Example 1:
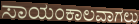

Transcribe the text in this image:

ಸಾಯಂಕಾಲವಾಗಲು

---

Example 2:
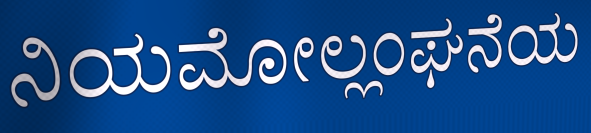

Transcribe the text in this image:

ನಿಯಮೋಲ್ಲಂಘನೆಯ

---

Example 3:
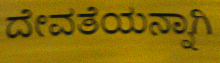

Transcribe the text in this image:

ದೇವತೆಯನ್ನಾಗಿ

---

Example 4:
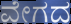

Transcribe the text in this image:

ವೇಗದ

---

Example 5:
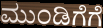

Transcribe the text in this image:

ಮುಂಡಿಗೆಗೆ